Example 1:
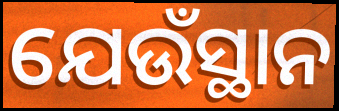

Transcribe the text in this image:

ଯେଉଁସ୍ଥାନ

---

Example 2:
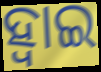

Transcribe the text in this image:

ହ୍ଵାଇ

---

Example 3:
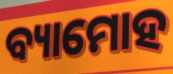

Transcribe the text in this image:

ବ୍ୟାମୋହ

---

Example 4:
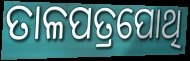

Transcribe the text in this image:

ତାଳପତ୍ରପୋଥି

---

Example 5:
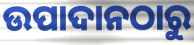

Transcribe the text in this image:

ଉପାଦାନଠାରୁ